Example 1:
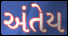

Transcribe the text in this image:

અંતેય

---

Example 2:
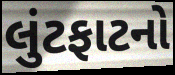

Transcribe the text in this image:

લુંટફાટનો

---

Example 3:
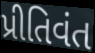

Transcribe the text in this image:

પ્રીતિવંત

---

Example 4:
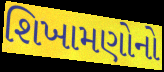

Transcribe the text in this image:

શિખામણોનો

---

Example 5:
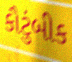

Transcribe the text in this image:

કૌટુંબીક